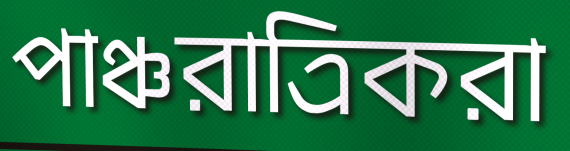
পাঞ্চরাত্রিকরা